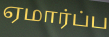
ஏமார்ப்ப